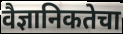
वैज्ञानिकतेचा